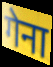
गेना